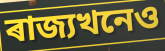
ৰাজ্যখনেও